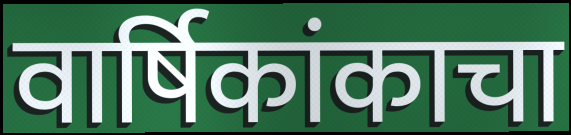
वार्षिकांकाचा